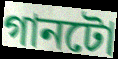
গানটো